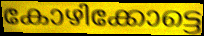
കോഴിക്കോട്ടെ